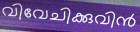
വിവേചിക്കുവിൻ